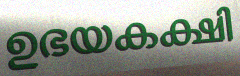
ഉഭയകക്ഷി